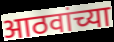
आठवांच्या